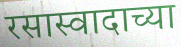
रसास्वादाच्या